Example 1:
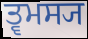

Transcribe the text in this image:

ਤ੍ਵਮਸ੍ਯ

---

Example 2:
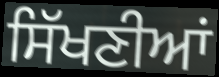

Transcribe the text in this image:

ਸਿੱਖਣੀਆਂ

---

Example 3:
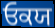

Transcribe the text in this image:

ਓਕਯ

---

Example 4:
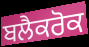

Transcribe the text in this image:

ਬਲੈਕਰੋਕ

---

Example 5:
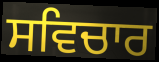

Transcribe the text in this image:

ਸਵਿਚਾਰ